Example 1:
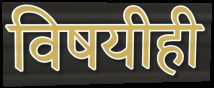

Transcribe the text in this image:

विषयीही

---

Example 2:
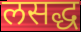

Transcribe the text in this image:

लसद्ध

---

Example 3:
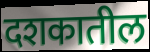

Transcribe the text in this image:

दशकातील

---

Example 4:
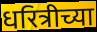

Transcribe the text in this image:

धरित्रीच्या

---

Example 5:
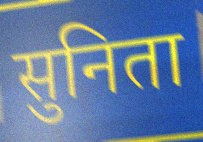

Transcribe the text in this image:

सुनिता